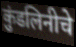
कुंडलिनीचे